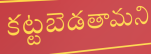
కట్టబెడతామని